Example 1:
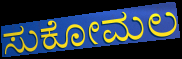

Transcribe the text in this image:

ಸುಕೋಮಲ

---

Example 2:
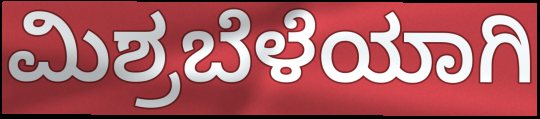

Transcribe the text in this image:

ಮಿಶ್ರಬೆಳೆಯಾಗಿ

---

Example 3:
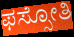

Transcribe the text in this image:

ಫಸ್ಸೋತಿ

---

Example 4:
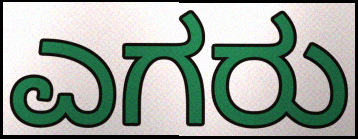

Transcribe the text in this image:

ಎಗರು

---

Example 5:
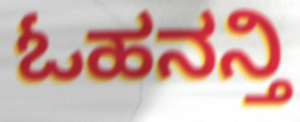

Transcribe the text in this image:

ಓಹನನ್ತಿ